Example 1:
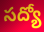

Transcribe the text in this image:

సద్యో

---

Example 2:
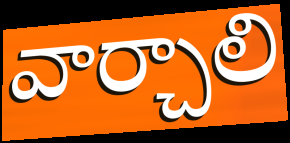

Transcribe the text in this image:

వార్చాలి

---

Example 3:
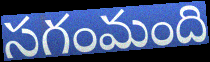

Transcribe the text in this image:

సగంమంది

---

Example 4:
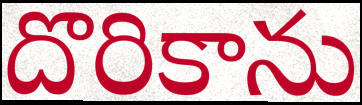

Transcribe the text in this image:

దొరికాను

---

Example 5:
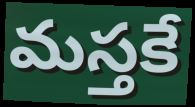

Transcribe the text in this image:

మస్తకే